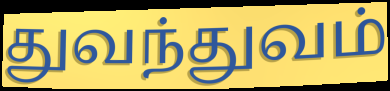
துவந்துவம்